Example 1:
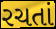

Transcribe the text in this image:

રચતાં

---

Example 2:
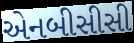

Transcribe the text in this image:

એનબીસીસી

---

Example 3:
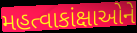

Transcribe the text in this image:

મહત્વાકાંક્ષાઓને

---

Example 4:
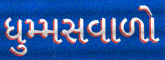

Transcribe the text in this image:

ધુમ્મસવાળો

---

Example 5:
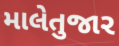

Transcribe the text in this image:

માલેતુજાર